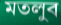
মতলুব